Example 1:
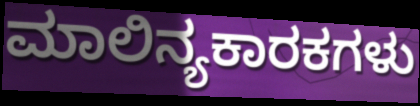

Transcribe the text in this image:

ಮಾಲಿನ್ಯಕಾರಕಗಳು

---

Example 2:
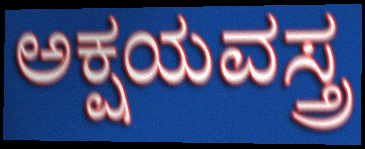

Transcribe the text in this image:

ಅಕ್ಷಯವಸ್ತ್ರ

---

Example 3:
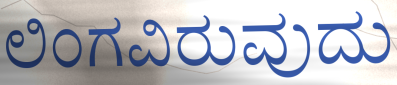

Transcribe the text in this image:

ಲಿಂಗವಿರುವುದು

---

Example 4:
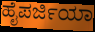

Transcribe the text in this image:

ಹೈಪರ್ಜಿಯಾ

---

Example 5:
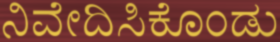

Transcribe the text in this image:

ನಿವೇದಿಸಿಕೊಂಡು